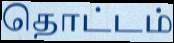
தொட்டம்